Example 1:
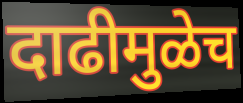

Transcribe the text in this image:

दाढीमुळेच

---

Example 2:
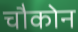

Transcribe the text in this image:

चौकोन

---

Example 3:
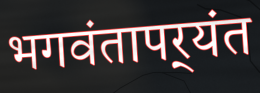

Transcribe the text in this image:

भगवंतापर्यंत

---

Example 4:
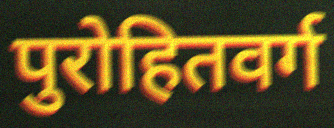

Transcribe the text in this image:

पुरोहितवर्ग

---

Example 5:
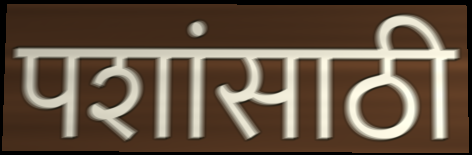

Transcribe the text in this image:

पशांसाठी